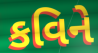
કવિને